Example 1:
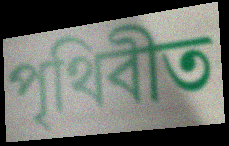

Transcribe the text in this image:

পৃথিবীত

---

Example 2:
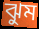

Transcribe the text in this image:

ঝুম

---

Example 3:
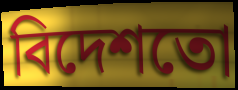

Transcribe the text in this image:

বিদেশতো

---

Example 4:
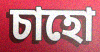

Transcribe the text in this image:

চাহো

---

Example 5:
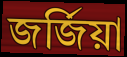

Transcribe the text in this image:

জৰ্জিয়া